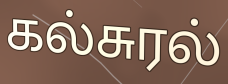
கல்சுரல்